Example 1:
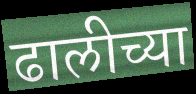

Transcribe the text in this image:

ढालीच्या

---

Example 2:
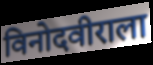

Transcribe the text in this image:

विनोदवीराला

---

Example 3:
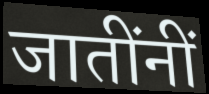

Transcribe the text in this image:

जातींनीं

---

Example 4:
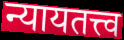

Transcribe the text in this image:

न्यायतत्त्व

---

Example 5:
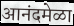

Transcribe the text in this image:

आनंदमेळा